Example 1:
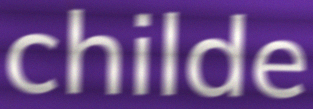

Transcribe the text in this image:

childe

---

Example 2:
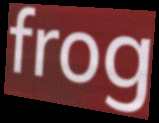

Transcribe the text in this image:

frog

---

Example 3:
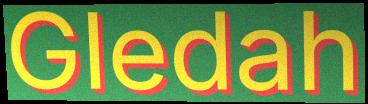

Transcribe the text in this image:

Gledah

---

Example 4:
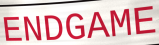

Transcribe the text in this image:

ENDGAME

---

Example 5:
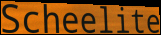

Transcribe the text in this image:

Scheelite